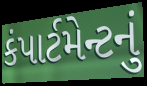
કંપાર્ટમેન્ટનું